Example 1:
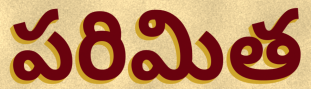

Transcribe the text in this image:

పరిమిత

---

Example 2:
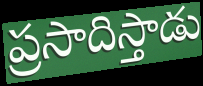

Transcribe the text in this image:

ప్రసాదిస్తాడు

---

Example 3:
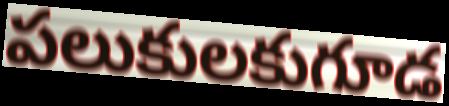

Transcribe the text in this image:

పలుకులకుగూడ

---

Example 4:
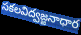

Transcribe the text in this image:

సకలవిద్వజ్జనాధార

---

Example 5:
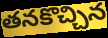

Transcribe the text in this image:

తనకొచ్చిన